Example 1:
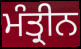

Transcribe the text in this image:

ਮੰਤ੍ਰੀਨ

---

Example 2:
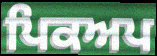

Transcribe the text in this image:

ਪਿਕਅਪ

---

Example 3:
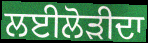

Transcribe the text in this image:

ਲਈਲੋੜੀਦਾ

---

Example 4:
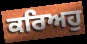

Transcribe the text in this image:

ਕਰਿਅਹੁ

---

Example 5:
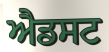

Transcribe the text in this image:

ਐਡਸਟ